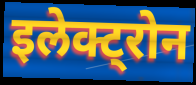
इलेक्ट्रोन